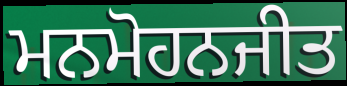
ਮਨਮੋਹਨਜੀਤ